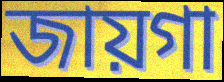
জায়গা